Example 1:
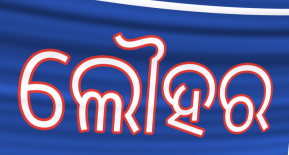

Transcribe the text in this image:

ଲୌହର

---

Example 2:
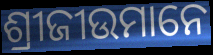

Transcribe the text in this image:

ଶ୍ରୀଜୀଉମାନେ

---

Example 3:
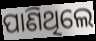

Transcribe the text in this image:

ପାଣିଥିଲେ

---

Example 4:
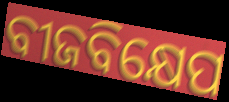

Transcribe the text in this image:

ବୀଜବିକ୍ଷେପ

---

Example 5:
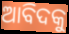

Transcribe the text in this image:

ଆବିଦକୁ